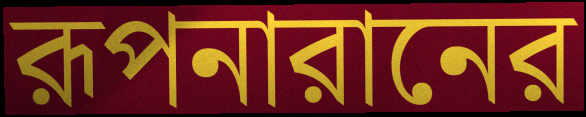
রূপনারানের